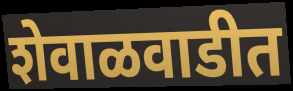
शेवाळवाडीत